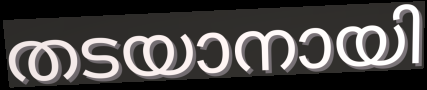
തടയാനായി